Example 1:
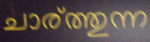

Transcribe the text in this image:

ചാര്ത്തുന്ന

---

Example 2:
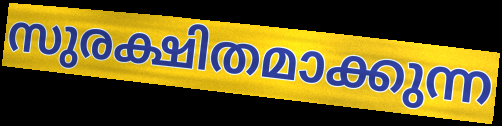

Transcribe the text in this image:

സുരക്ഷിതമാക്കുന്ന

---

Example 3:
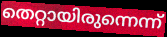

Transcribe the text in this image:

തെറ്റായിരുന്നെന്ന്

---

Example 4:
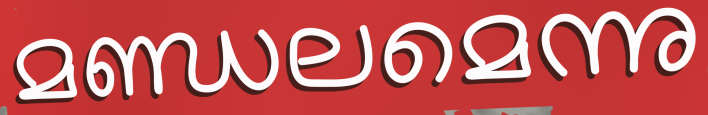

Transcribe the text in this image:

മണ്ഡലമെന്നു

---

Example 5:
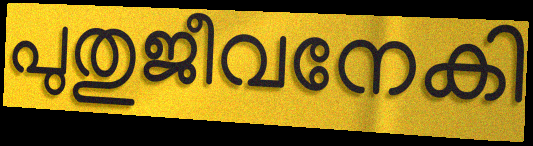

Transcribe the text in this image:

പുതുജീവനേകി